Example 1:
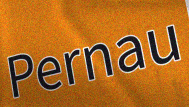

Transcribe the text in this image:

Pernau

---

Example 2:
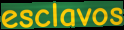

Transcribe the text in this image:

esclavos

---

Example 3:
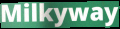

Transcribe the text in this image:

Milkyway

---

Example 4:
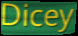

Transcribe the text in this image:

Dicey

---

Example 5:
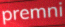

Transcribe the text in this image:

premni